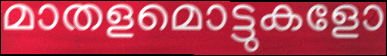
മാതളമൊട്ടുകളോ